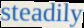
steadily